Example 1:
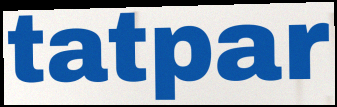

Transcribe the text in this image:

tatpar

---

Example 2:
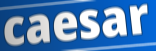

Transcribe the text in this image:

caesar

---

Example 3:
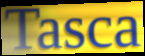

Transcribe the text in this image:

Tasca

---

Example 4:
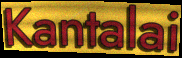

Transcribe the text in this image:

Kantalai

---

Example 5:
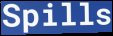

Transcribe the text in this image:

Spills